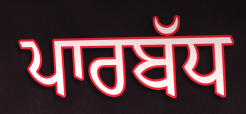
ਪਾਰਬੱਧ